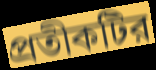
প্রতীকটির